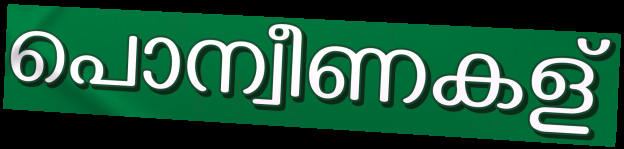
പൊന്വീണകള്